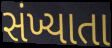
સંખ્યાતા